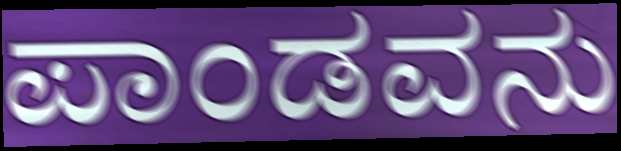
ಪಾಂಡವನು